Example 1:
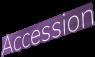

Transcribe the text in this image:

Accession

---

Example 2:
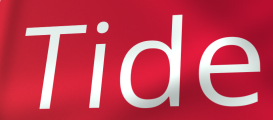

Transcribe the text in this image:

Tide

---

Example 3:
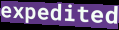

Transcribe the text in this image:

expedited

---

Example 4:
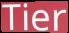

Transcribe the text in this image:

Tier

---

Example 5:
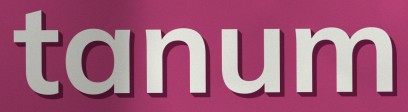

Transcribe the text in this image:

tanum